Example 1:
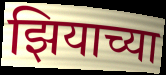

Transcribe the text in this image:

झियाच्या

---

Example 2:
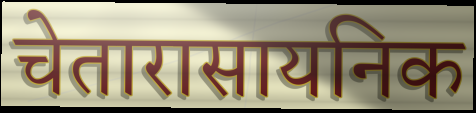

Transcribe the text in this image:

चेतारासायनिक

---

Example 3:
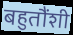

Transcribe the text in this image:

बहुतौंशी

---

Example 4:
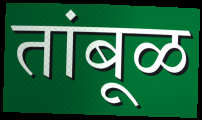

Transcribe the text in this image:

तांबूळ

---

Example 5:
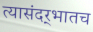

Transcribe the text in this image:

त्यासंदर्भातच